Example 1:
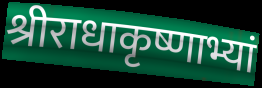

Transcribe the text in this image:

श्रीराधाकृष्णाभ्यां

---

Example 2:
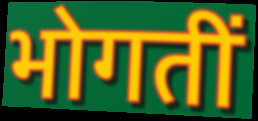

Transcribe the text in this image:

भोगतीं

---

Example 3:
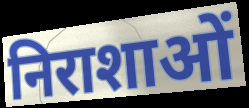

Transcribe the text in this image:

निराशाओं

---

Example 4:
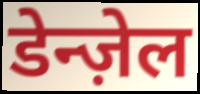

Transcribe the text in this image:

डेन्ज़ेल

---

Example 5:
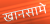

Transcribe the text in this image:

खानसामे